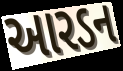
આરડન